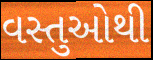
વસ્તુઓથી